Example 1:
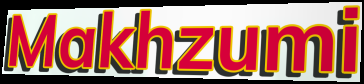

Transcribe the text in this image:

Makhzumi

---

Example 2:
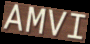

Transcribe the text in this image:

AMVI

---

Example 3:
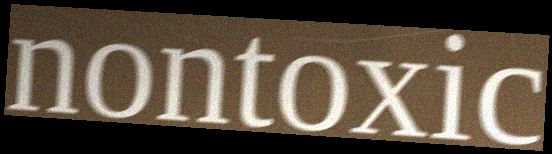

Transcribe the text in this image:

nontoxic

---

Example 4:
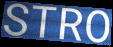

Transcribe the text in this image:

STRO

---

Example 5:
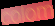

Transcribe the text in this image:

colom